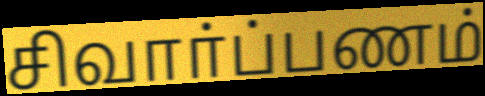
சிவார்ப்பணம்